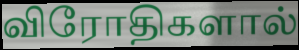
விரோதிகளால்